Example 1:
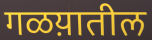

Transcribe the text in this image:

गळय़ातील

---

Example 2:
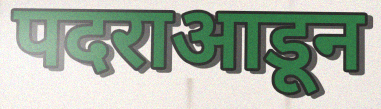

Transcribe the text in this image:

पदराआडून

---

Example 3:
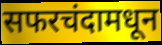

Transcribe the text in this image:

सफरचंदामधून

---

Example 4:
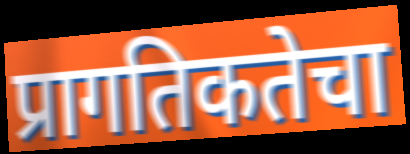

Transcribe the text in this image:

प्रागतिकतेचा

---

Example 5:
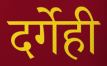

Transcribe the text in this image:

दर्गेही